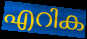
എറിക